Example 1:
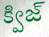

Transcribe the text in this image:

క్విజ్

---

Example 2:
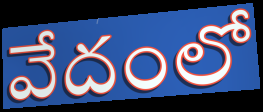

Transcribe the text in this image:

వేదంలో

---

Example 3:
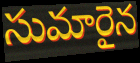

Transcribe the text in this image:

సుమారైన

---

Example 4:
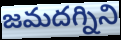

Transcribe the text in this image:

జమదగ్నిని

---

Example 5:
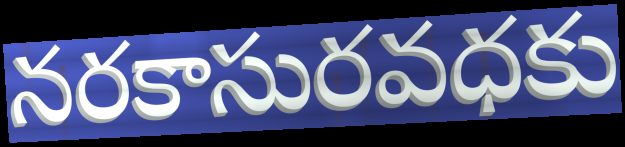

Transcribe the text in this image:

నరకాసురవధకు